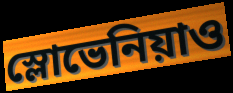
স্লোভেনিয়াও